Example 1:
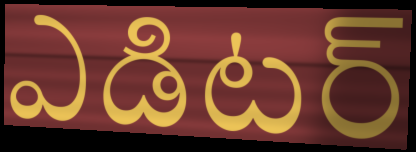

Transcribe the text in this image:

ఎడిటర్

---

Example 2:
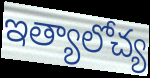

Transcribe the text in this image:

ఇత్యాలోచ్య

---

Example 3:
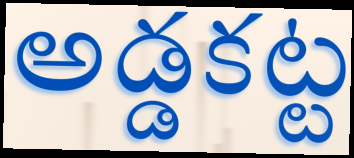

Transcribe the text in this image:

అడ్డకట్ట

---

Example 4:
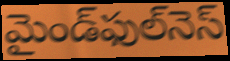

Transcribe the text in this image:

మైండ్‌ఫుల్‌నెస్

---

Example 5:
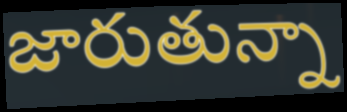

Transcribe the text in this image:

జారుతున్నా